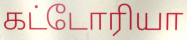
கட்டோரியா